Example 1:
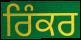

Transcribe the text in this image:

ਰਿੰਕਰ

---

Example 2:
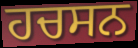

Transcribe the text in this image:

ਹਚਸਨ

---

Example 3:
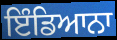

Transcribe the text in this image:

ਇੰਡਿਆਨਾ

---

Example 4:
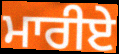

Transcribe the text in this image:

ਮਾਰੀਏ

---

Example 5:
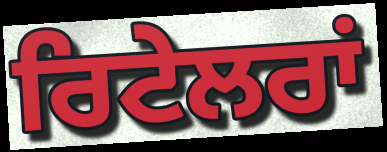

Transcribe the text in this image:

ਰਿਟੇਲਰਾਂ